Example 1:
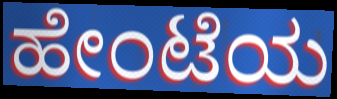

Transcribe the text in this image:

ಹೇಂಟೆಯ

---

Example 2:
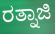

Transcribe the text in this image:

ರತ್ನಾಜಿ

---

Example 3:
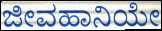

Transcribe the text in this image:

ಜೀವಹಾನಿಯೇ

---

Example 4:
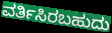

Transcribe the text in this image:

ವರ್ತಿಸಿರಬಹುದು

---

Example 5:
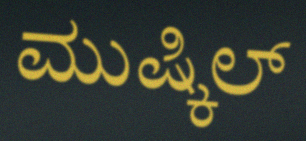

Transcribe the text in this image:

ಮುಷ್ಕಿಲ್